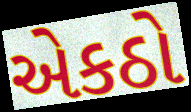
એકઠો